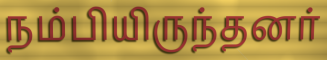
நம்பியிருந்தனர்